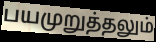
பயமுறுத்தலும்